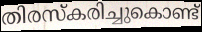
തിരസ്കരിച്ചുകൊണ്ട്